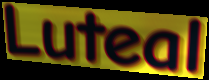
Luteal